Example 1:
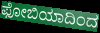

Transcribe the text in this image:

ಫೋಬಿಯಾದಿಂದ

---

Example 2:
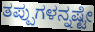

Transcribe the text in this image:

ತಪ್ಪುಗಳನ್ನಷ್ಟೇ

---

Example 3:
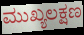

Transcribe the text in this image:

ಮುಖ್ಯಲಕ್ಷಣ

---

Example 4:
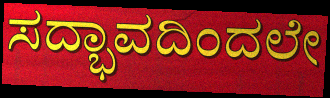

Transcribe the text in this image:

ಸದ್ಭಾವದಿಂದಲೇ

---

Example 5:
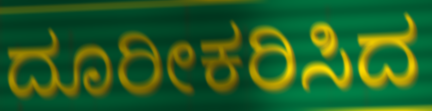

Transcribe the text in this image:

ದೂರೀಕರಿಸಿದ